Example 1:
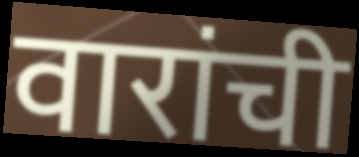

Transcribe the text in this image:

वारांची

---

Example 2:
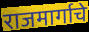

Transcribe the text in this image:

राजमार्गाचे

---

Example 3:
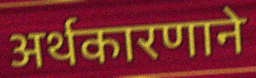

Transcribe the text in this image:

अर्थकारणाने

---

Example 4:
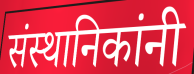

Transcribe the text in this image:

संस्थानिकांनी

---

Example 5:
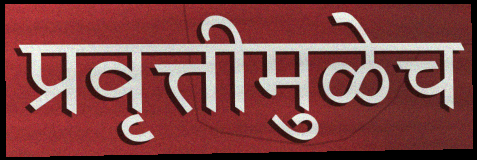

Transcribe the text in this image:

प्रवृत्तीमुळेच